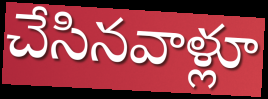
చేసినవాళ్లూ